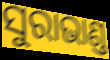
ସୁରାଭାଣ୍ଡ